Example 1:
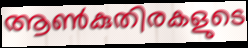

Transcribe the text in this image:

ആൺകുതിരകളുടെ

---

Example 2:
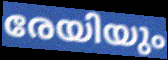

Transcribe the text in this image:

രേയിയും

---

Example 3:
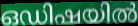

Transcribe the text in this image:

ഒഡിഷയിൽ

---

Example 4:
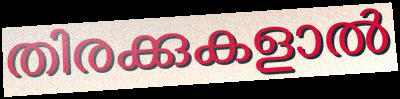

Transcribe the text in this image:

തിരക്കുകളാൽ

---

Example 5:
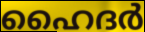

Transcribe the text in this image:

ഹൈദർ